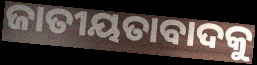
ଜାତୀୟତାବାଦକୁ